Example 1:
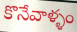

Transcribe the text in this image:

కొనేవాళ్ళం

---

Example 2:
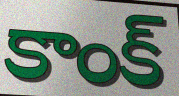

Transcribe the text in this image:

కాంక్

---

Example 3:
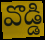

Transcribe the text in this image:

వొడ్డి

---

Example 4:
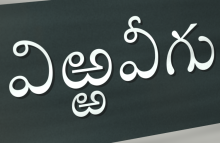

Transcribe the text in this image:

విఱ్ఱవీగు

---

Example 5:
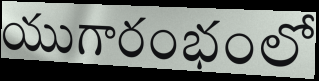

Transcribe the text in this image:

యుగారంభంలో